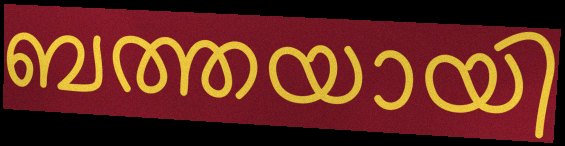
ബത്തയായി